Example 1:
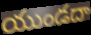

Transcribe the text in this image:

యుండదా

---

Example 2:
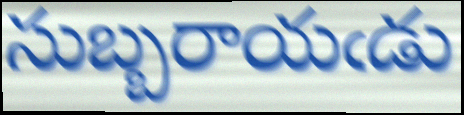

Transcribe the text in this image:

సుబ్బరాయఁడు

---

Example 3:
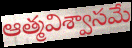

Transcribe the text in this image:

ఆత్మవిశ్వాసమే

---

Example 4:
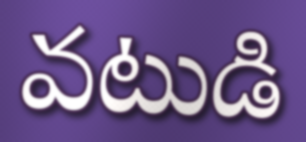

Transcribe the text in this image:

వటుడి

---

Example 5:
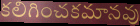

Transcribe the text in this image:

కలిగించకమానవు